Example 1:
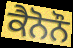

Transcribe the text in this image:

ਕੈਨੋਨੌ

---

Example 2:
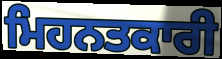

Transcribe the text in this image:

ਮਿਹਨਤਕਾਰੀ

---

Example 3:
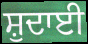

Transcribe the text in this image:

ਸ਼ੁਦਾਈ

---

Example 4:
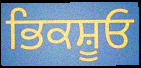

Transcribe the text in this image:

ਭਿਕਸ਼ੂਓ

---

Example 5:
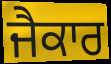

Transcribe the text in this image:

ਜੈਕਾਰ